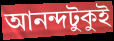
আনন্দটুকুই